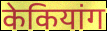
केकियांग